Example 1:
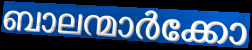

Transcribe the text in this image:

ബാലന്മാർക്കോ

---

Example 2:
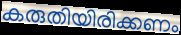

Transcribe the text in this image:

കരുതിയിരിക്കണം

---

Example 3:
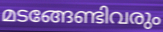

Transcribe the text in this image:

മടങ്ങേണ്ടിവരും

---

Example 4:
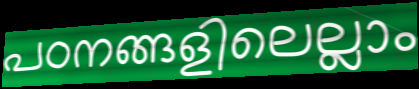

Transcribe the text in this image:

പഠനങ്ങളിലെല്ലാം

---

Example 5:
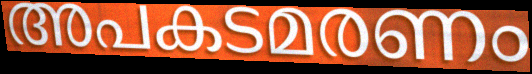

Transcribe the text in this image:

അപകടമരണം